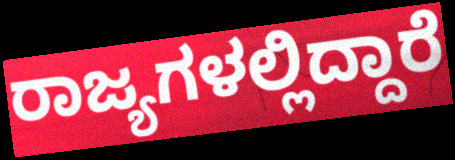
ರಾಜ್ಯಗಳಲ್ಲಿದ್ದಾರೆ